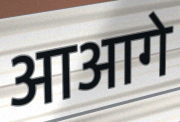
आआगे